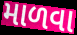
માળવા